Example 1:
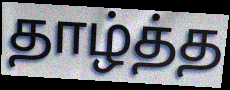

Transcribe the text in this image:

தாழ்த்த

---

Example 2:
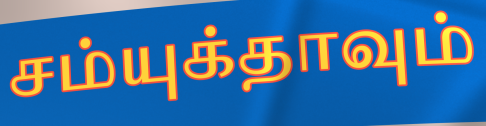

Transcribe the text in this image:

சம்யுக்தாவும்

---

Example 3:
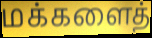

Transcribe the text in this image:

மக்களைத்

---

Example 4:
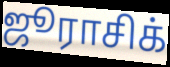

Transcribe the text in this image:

ஜூராசிக்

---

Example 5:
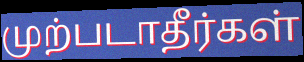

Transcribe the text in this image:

முற்படாதீர்கள்